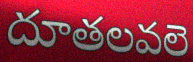
దూతలవలె